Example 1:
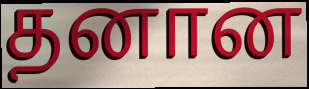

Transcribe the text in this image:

தனான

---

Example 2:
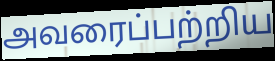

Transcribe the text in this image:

அவரைப்பற்றிய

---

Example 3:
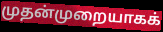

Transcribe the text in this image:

முதன்முறையாகக்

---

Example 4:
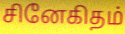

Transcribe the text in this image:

சினேகிதம்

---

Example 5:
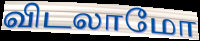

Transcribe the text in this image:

விடலாமோ